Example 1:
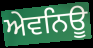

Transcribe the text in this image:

ਅੇਵਨਿਊ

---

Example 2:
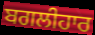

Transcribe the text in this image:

ਬਗਲੀਹਾਰ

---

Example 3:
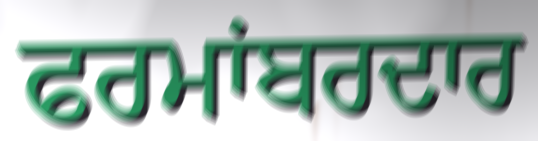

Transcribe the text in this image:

ਫਰਮਾਂਬਰਦਾਰ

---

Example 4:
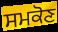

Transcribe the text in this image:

ਸਮਕੋਣ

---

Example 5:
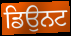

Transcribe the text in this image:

ਡਿਉਨਟ